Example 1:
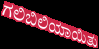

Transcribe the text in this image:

ಗಲಿಬಿಲಿಯಾಯಿತು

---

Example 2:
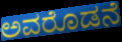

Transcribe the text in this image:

ಅವರೊಡನೆ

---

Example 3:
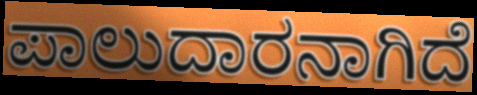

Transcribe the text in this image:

ಪಾಲುದಾರನಾಗಿದೆ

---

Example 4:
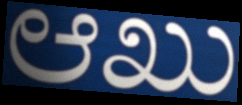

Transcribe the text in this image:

ಆಖು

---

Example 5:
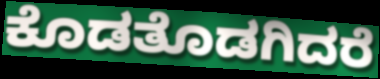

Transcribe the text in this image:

ಕೊಡತೊಡಗಿದರೆ